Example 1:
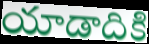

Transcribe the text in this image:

యాడాదికి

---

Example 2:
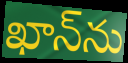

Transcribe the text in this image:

ఖాన్‌ను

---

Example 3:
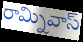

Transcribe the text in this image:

రామ్నివాస్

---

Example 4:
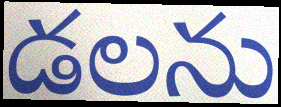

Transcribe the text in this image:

డలను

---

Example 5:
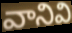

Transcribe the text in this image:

వానివి